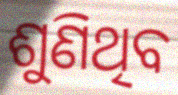
ଶୁଣିଥିବ